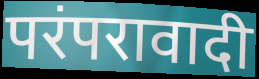
परंपरावादी